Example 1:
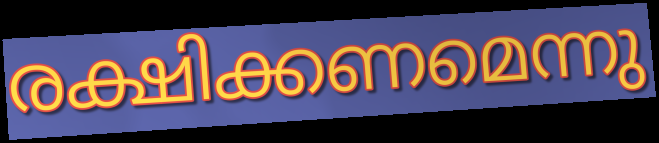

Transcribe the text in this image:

രക്ഷിക്കണമെന്നു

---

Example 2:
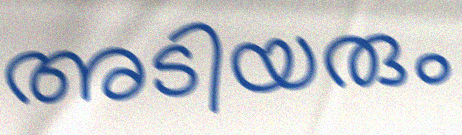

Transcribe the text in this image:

അടിയരും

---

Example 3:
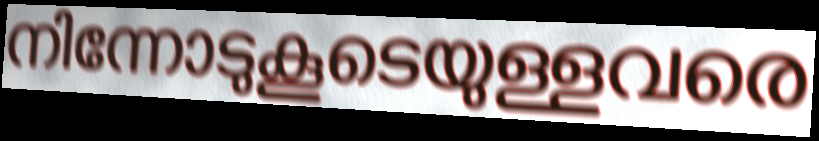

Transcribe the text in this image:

നിന്നോടുകൂടെയുള്ളവരെ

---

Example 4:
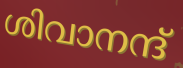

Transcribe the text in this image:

ശിവാനന്ദ്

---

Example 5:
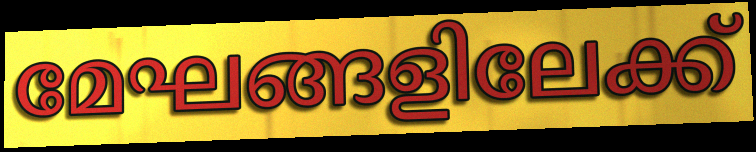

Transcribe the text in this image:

മേഘങ്ങളിലേക്ക്